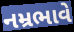
નમ્રભાવે